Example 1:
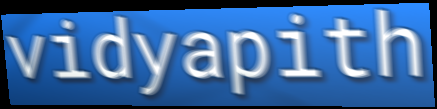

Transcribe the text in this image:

vidyapith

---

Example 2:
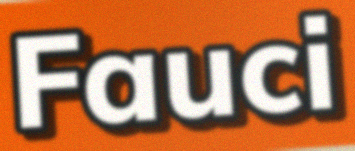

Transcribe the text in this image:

Fauci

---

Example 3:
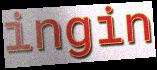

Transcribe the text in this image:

ingin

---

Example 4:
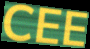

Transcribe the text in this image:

CEE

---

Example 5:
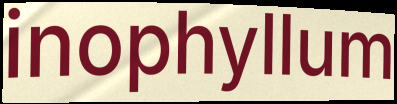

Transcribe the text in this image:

inophyllum